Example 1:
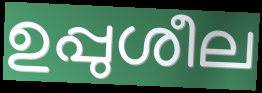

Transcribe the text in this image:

ഉപ്പുശീല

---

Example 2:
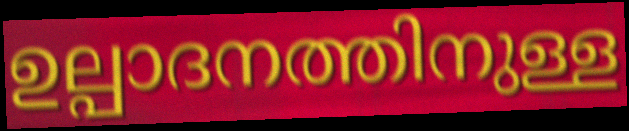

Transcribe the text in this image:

ഉല്പാദനത്തിനുള്ള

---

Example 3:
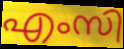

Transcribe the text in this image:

എംസി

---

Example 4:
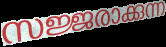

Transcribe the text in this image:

സജ്ജരാക്കുന്ന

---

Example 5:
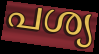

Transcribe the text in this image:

പശ്യ